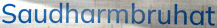
Saudharmbruhat